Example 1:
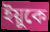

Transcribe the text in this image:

ইয়ুকে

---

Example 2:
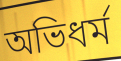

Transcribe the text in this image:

অভিধর্ম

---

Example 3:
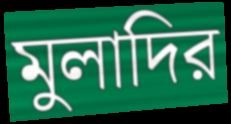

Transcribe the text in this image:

মুলাদির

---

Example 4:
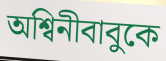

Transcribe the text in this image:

অশ্বিনীবাবুকে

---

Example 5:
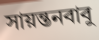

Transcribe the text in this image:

সায়ন্তনবাবু